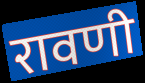
रावणी